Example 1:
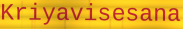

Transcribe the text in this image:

Kriyavisesana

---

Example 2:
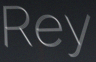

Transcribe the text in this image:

Rey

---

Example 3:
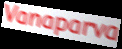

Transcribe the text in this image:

Vanaparva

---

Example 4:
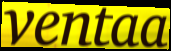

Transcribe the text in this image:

ventaa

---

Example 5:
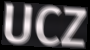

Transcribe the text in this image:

UCZ